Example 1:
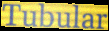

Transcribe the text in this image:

Tubular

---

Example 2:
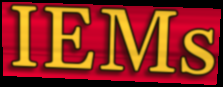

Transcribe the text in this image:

IEMs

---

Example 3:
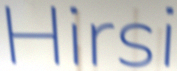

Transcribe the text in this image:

Hirsi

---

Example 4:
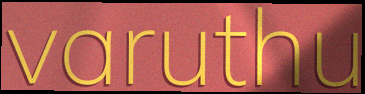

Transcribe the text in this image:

varuthu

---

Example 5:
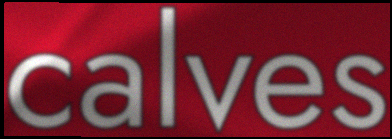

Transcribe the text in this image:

calves